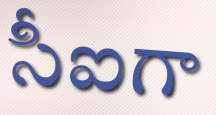
సీఐగా